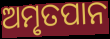
ଅମୃତପାନ